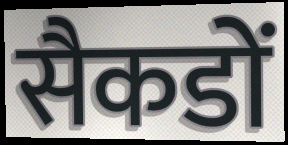
सैकडों